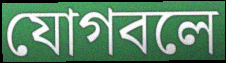
যোগবলে